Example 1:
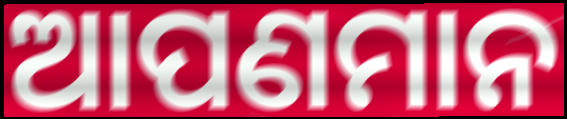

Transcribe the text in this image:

ଆପଣମାନ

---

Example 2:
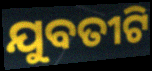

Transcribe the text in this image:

ଯୁବତୀଟି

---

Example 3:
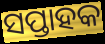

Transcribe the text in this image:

ସପ୍ତାହକ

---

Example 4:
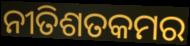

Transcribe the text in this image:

ନୀତିଶତକମର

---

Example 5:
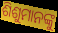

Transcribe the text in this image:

ଶିଶୁମାନଙ୍କୁ